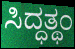
ಸಿದ್ಧತ್ಥಂ